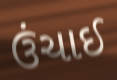
ઉંચાઈ